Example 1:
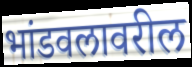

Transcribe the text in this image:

भांडवलावरील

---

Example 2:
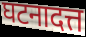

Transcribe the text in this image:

घटनादत्त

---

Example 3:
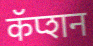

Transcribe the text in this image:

कॅप्शन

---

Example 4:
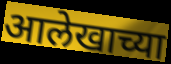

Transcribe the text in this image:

आलेखाच्या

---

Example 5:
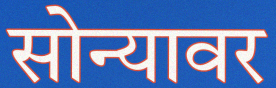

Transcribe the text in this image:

सोन्यावर